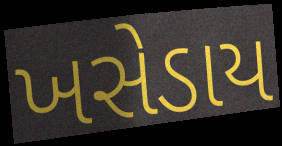
ખસેડાય